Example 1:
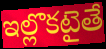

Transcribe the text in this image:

ఇల్లొకటైతే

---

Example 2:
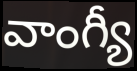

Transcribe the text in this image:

వాంగ్యీ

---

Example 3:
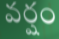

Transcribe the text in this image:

వర్షం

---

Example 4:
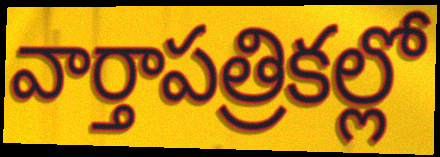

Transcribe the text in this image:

వార్తాపత్రికల్లో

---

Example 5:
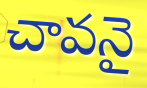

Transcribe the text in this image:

చావనై